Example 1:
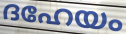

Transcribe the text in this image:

ദഹേയം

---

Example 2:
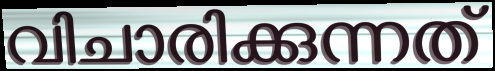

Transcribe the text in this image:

വിചാരിക്കുന്നത്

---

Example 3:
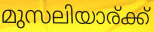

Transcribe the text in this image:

മുസലിയാര്ക്ക്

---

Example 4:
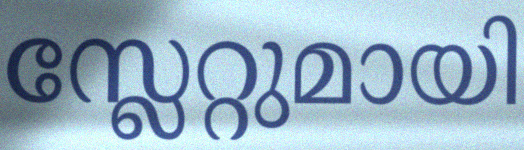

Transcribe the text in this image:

സ്ലേറ്റുമായി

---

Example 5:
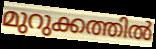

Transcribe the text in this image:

മുറുക്കത്തിൽ